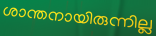
ശാന്തനായിരുന്നില്ല